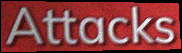
Attacks